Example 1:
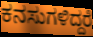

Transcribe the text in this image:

ಕನಸುಗಳಿದ್ದರೆ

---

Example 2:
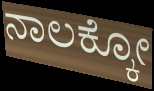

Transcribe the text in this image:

ನಾಲಕ್ಕೋ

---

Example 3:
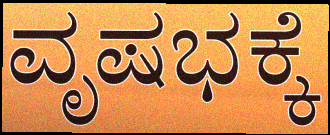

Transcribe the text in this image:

ವೃಷಭಕ್ಕೆ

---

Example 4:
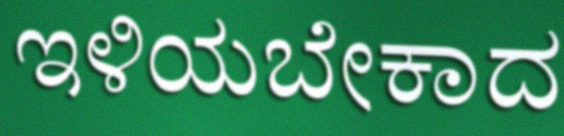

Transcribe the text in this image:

ಇಳಿಯಬೇಕಾದ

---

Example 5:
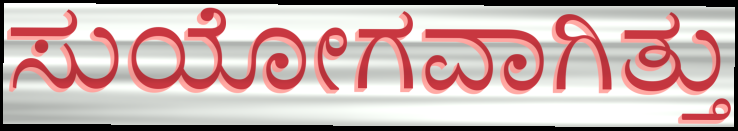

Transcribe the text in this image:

ಸುಯೋಗವಾಗಿತ್ತು